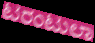
ಟರಂಟುಲಾ